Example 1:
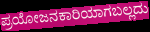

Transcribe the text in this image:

ಪ್ರಯೋಜನಕಾರಿಯಾಗಬಲ್ಲದು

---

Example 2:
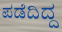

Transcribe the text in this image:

ಪಡೆದಿದ್ದ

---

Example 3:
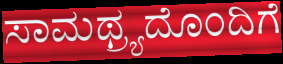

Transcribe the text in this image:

ಸಾಮಥ್ರ್ಯದೊಂದಿಗೆ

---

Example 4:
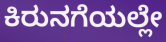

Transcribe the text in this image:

ಕಿರುನಗೆಯಲ್ಲೇ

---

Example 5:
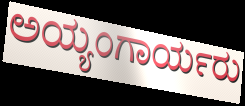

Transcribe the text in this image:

ಅಯ್ಯಂಗಾರ್ಯರು